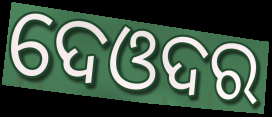
ଦେଓଦର